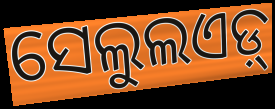
ସେଲୁଲଏଡ଼୍